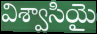
విశ్వాసియై